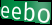
eebo